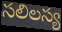
సలిలస్య